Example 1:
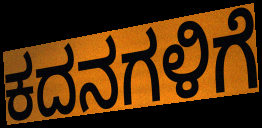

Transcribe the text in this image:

ಕದನಗಳಿಗೆ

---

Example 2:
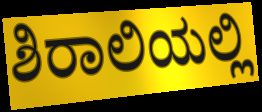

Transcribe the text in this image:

ಶಿರಾಲಿಯಲ್ಲಿ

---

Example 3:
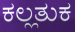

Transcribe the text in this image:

ಕಲ್ಲತುಕ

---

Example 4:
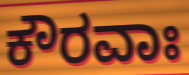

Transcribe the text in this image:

ಕೌರವಾಃ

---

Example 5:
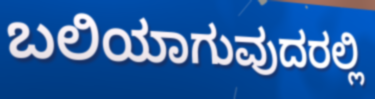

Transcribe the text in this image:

ಬಲಿಯಾಗುವುದರಲ್ಲಿ